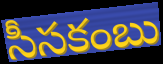
సీసకంబు